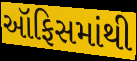
ઑફિસમાંથી